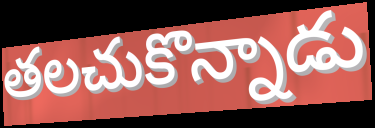
తలచుకొన్నాడు